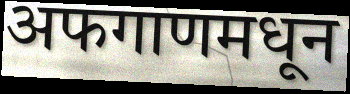
अफगाणमधून